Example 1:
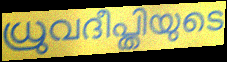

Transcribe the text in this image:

ധ്രുവദീപ്തിയുടെ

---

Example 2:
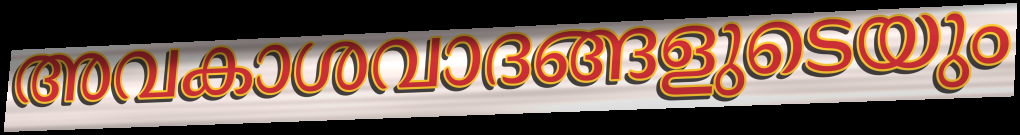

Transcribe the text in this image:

അവകാശവാദങ്ങളുടെയും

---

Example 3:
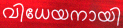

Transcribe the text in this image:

വിധേയനായി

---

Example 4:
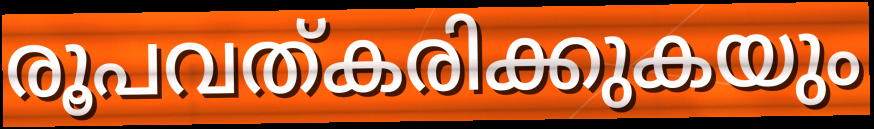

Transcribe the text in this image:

രൂപവത്കരിക്കുകയും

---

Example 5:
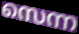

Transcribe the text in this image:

സെന്ന